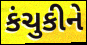
કંચુકીને